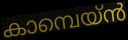
കാമ്പെയ്ൻ